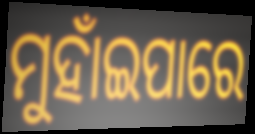
ମୁହାଁଇପାରେ